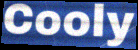
Cooly